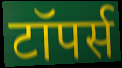
टॉपर्स